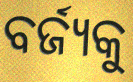
ବର୍ଜ୍ୟକୁ